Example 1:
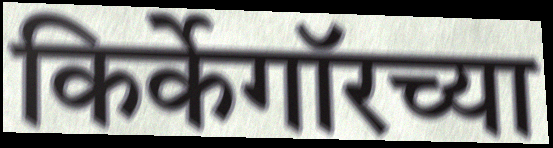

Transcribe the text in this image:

किर्केगॉरच्या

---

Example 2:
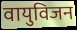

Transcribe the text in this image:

वायुविजन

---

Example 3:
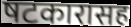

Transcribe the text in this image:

षटकारासह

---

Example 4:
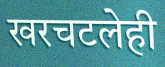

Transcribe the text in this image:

खरचटलेही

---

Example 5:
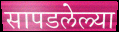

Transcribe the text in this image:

सापडलेल्या